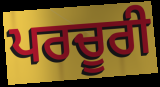
ਪਰਚੂਰੀ